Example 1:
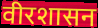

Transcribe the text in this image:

वीरशासन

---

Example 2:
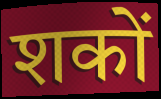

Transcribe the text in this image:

शकों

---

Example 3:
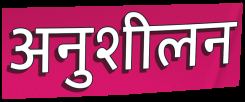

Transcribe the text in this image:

अनुशीलन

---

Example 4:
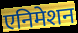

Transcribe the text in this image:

एनिमेशन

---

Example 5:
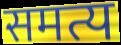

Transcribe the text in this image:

समत्य